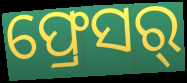
ଫ୍ରେସର୍